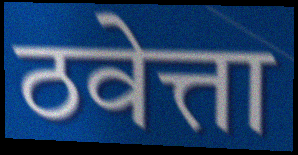
ठवेत्ता